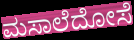
ಮಸಾಲೆದೋಸೆ